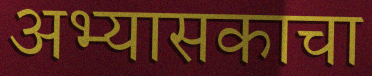
अभ्यासकाचा